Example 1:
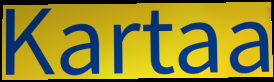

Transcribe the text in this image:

Kartaa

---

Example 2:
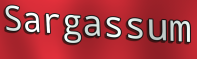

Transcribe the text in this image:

Sargassum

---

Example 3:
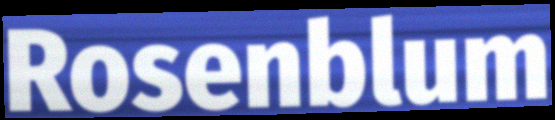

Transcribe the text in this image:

Rosenblum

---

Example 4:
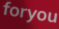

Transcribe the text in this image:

foryou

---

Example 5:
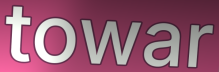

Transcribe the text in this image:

towar